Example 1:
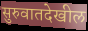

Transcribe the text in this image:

सुरुवातदेखील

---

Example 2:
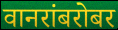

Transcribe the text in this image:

वानरांबरोबर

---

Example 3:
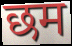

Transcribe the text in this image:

छम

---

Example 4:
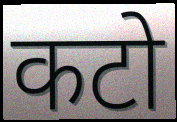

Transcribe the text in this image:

कटो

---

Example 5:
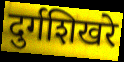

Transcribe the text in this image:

दुर्गशिखरे